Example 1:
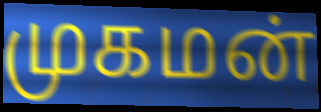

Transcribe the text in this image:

முகமன்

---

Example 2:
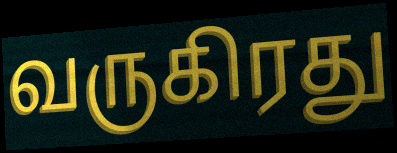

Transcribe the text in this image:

வருகிரது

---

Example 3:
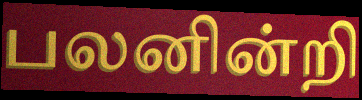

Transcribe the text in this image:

பலனின்றி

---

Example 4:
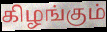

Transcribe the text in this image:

கிழங்கும்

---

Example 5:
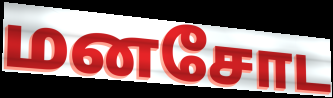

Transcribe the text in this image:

மனசோட